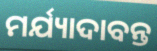
ମର୍ଯ୍ୟାଦାବନ୍ତ